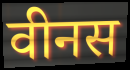
वीनस